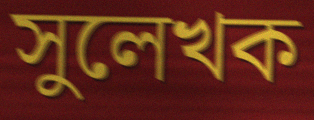
সুলেখক